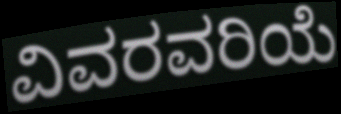
ವಿವರವರಿಯೆ